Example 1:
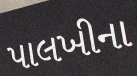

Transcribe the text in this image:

પાલખીના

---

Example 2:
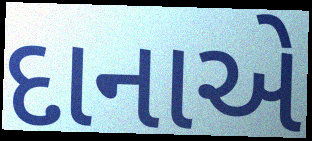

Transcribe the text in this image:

દાનાએ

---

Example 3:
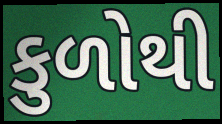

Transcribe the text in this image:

કુળોથી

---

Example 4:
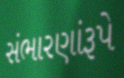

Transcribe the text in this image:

સંભારણાંરૂપે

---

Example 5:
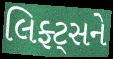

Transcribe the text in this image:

લિફ્ટ્સને